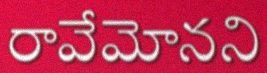
రావేమోనని